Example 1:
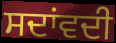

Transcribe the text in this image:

ਸਦਾਂਵਦੀ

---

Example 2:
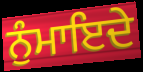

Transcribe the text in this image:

ਨੁੰਮਾਇਦੇ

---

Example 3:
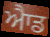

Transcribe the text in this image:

ਐਾਡ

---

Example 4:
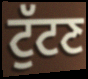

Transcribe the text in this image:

ਟੁੱਟਣ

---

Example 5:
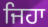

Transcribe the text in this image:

ਜਿਹਾ